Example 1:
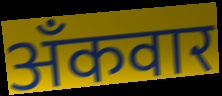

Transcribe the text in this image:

अँकवार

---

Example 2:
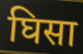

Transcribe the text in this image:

घिसा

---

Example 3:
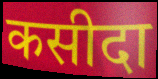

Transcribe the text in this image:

कसीदा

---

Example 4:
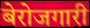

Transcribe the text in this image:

बेरोजगारी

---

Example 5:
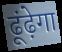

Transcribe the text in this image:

ढूंढ़ेगा